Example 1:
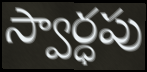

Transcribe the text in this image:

స్వార్ధపు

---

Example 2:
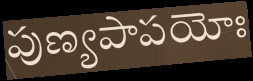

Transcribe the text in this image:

పుణ్యపాపయోః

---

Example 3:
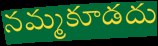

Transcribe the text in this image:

నమ్మకూడదు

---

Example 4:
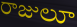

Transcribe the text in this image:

రాజులూ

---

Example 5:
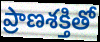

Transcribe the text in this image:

ప్రాణశక్తితో